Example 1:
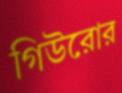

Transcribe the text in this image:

গিউরোর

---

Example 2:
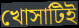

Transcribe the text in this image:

খোসাটিই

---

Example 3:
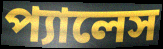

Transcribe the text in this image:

প্যালেস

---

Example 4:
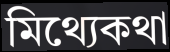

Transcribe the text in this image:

মিথ্যেকথা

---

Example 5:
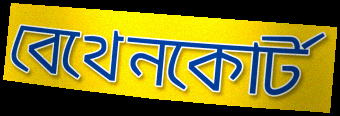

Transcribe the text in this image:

বেথেনকোর্ট